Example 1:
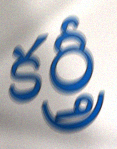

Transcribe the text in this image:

కర్త్రీ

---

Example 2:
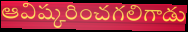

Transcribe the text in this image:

ఆవిష్కరించగలిగాడు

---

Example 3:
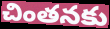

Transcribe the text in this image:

చింతనకు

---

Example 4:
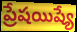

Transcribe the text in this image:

ప్రేషయిష్యే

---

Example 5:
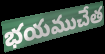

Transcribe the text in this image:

భయముచేత